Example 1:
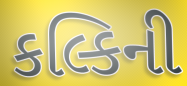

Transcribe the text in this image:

કલ્કિની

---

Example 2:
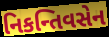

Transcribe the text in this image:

નિકન્તિવસેન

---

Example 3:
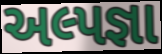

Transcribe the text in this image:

અલ્પજ્ઞા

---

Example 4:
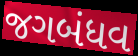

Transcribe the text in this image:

જગબંધવ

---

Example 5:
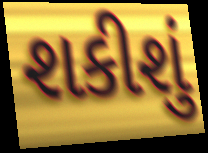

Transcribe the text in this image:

શકીશું